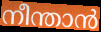
നീന്താൻ